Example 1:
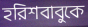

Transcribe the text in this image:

হরিশবাবুকে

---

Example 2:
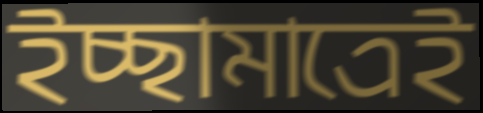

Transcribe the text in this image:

ইচ্ছামাত্রেই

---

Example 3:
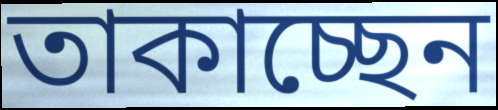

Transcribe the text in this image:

তাকাচ্ছেন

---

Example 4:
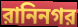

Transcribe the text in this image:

রানিনগর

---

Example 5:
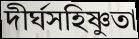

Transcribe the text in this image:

দীর্ঘসহিষ্ণুতা